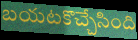
బయటకొచ్చేసింది